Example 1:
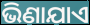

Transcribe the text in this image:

ଭିଣାଯାଏ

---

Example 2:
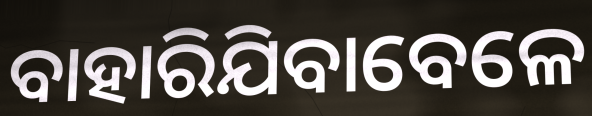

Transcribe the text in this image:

ବାହାରିଯିବାବେଳେ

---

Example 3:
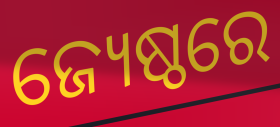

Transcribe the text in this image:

ଜ୍ୟେଷ୍ଠରେ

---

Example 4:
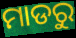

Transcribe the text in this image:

ମାଡରୁ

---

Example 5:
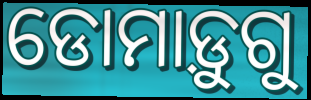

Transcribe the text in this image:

ଡୋମାଡ଼ୁଗୁ